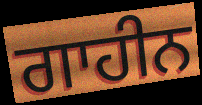
ਗਾਹੀਨ